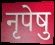
नृपेषु